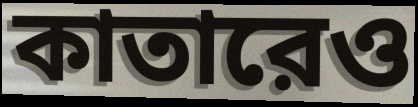
কাতারেও